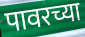
पावरच्या